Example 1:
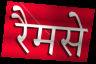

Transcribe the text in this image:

रैमसे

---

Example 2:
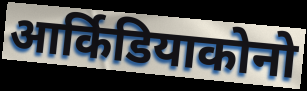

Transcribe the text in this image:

आर्किडियाकोनो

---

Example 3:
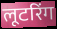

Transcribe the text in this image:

लूटरिंग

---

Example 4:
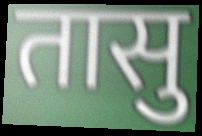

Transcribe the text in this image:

तासु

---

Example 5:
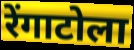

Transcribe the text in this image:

रेंगाटोला